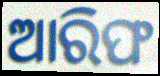
ଆରିଫ